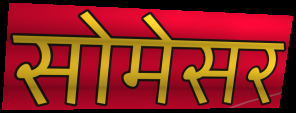
सोमेसर